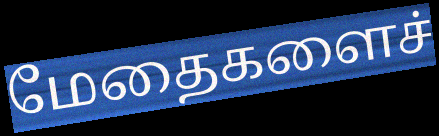
மேதைகளைச்